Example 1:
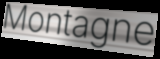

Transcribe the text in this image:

Montagne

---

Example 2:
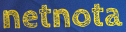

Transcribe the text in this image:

netnota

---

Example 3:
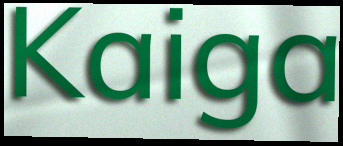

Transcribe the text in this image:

Kaiga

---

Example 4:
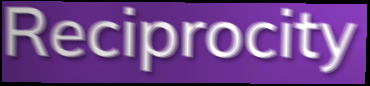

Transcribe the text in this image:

Reciprocity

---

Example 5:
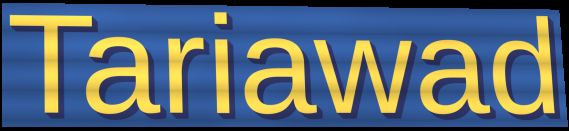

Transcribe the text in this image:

Tariawad